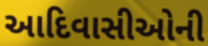
આદિવાસીઓની